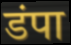
डंपा